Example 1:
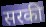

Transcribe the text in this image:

सरकी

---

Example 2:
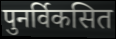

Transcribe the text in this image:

पुनर्विकसित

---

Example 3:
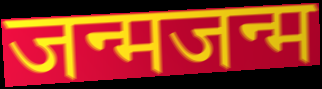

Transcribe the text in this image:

जन्मजन्म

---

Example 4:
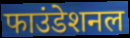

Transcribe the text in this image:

फाउंडेशनल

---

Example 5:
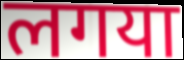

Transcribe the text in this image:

लगया